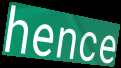
hence